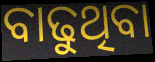
ବାଢୁଥିବା